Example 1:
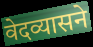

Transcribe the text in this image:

वेदव्यासने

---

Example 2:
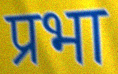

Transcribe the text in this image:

प्रभा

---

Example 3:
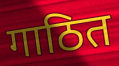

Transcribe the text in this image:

गाठित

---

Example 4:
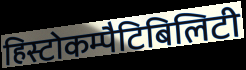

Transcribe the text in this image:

हिस्टोकम्पैटिबिलिटी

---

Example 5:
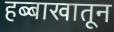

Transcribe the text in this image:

हब्बाखातून